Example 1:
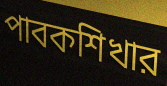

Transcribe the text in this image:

পাবকশিখার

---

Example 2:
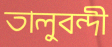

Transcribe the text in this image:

তালুবন্দী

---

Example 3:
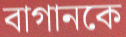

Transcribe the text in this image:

বাগানকে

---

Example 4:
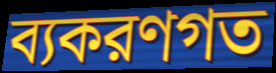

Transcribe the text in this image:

ব্যকরণগত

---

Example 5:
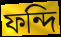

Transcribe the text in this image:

ফন্দি